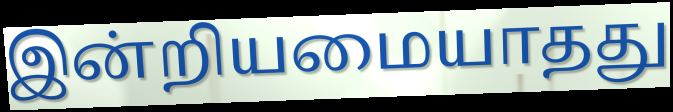
இன்றியமையாதது